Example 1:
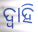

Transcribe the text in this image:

ଦ୍ଵାହି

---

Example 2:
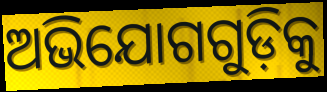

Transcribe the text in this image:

ଅଭିଯୋଗଗୁଡ଼ିକୁ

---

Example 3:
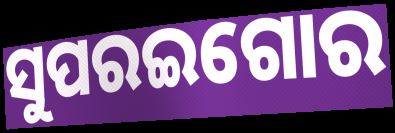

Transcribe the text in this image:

ସୁପରଇଗୋର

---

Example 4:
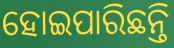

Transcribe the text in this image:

ହୋଇପାରିଛନ୍ତି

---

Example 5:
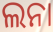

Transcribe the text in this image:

ଲନା